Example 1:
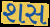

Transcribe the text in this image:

શસ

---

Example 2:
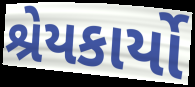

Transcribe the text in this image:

શ્રેયકાર્યો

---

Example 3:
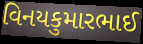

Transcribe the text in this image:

વિનયકુમારભાઈ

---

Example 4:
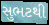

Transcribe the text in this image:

સુભટથી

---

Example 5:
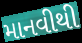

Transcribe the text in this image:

માનવીથી